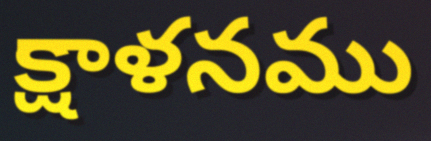
క్షాళనము